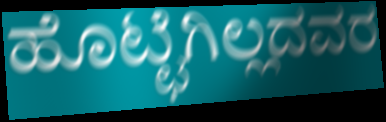
ಹೊಟ್ಟೆಗಿಲ್ಲದವರ